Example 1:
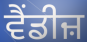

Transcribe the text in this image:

ਵੈਂਡੀਜ਼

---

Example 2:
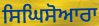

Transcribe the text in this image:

ਸਿਘਿਸੋਆਰਾ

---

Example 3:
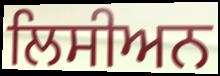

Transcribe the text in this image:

ਲਿਸੀਅਨ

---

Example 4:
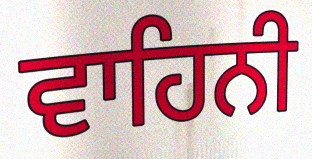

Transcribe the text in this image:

ਵਾਹਿਨੀ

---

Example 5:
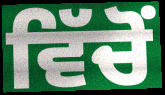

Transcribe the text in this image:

ਵਿੱਚੋੰ